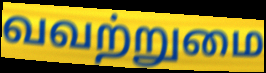
வவற்றுமை